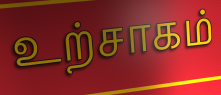
உற்சாகம்